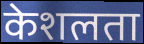
केशलता